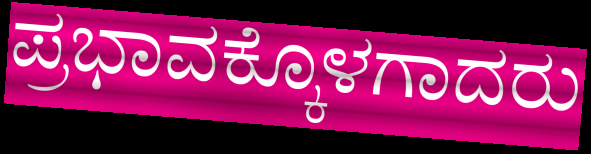
ಪ್ರಭಾವಕ್ಕೊಳಗಾದರು